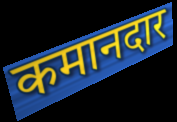
कमानदार